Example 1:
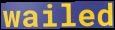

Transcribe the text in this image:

wailed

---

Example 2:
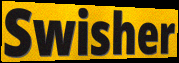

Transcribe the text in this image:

Swisher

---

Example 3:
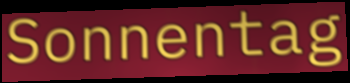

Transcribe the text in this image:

Sonnentag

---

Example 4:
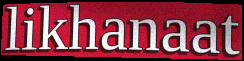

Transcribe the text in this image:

likhanaat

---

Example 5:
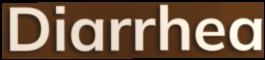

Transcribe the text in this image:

Diarrhea